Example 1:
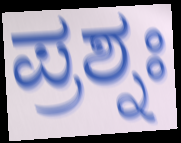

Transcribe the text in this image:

ಪ್ರಶ್ನಃ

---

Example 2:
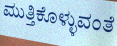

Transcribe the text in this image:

ಮುತ್ತಿಕೊಳ್ಳುವಂತೆ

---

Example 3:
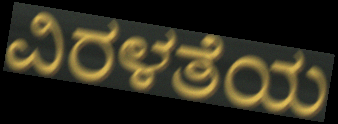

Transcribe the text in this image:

ವಿರಳತೆಯ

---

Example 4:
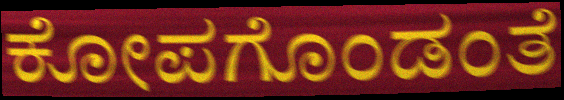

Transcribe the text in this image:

ಕೋಪಗೊಂಡಂತೆ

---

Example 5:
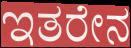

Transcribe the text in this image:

ಇತರೇನ